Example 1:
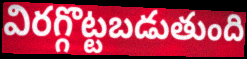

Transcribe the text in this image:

విరగ్గొట్టబడుతుంది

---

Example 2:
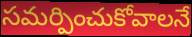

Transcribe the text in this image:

సమర్పించుకోవాలనే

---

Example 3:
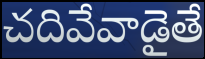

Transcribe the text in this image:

చదివేవాడైతే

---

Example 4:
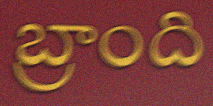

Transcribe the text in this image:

బ్రాంది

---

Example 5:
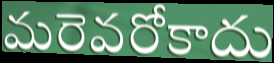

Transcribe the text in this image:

మరెవరోకాదు